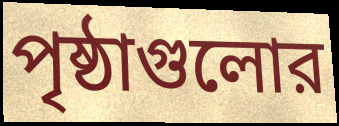
পৃষ্ঠাগুলোর